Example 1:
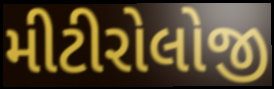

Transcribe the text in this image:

મીટીરોલોજી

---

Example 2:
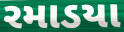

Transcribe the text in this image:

રમાડયા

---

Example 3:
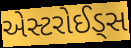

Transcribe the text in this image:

એસ્ટરોઈડ્સ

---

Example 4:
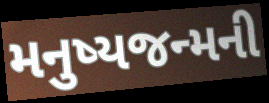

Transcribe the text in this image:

મનુષ્યજન્મની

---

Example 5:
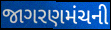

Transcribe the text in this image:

જાગરણમંચની